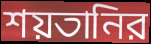
শয়তানির